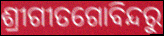
ଶ୍ରୀଗୀତଗୋବିନ୍ଦରୁ